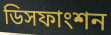
ডিসফাংশন